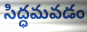
సిద్ధమవడం